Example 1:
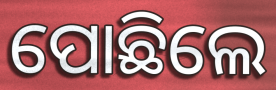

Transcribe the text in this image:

ପୋଛିଲେ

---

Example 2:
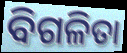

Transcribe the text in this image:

ବିଗଳିତା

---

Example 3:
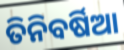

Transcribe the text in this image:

ତିନିବର୍ଷିଆ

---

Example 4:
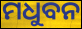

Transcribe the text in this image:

ମଧୁବନ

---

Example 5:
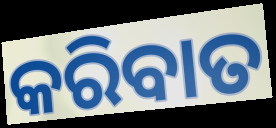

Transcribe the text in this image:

କରିବାତ